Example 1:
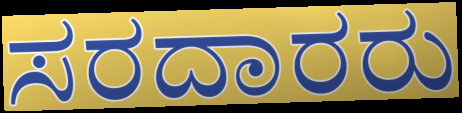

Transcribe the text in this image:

ಸರದಾರರು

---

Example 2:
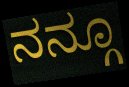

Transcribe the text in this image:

ನನ್ಗೂ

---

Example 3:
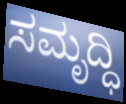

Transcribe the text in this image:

ಸಮೃದ್ಧಿ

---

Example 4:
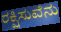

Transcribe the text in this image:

ರಕ್ಷಿಸುವೆನು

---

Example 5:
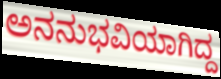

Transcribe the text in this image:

ಅನನುಭವಿಯಾಗಿದ್ದ